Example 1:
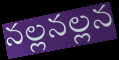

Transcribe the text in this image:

నల్లనల్లన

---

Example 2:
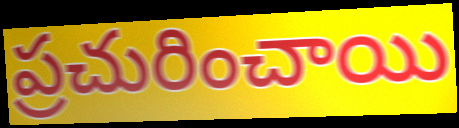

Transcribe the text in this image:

ప్రచురించాయి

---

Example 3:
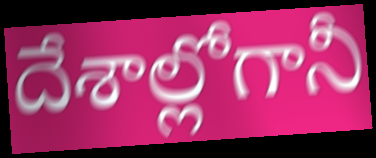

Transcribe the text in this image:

దేశాల్లోగానీ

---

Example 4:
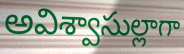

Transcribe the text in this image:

అవిశ్వాసుల్లాగా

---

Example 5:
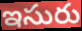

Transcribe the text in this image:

ఇసురు